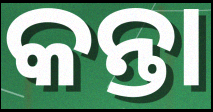
କନ୍ତା